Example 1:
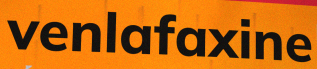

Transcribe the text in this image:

venlafaxine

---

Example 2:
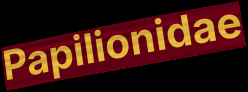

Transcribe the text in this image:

Papilionidae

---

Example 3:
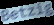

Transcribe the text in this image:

Betzig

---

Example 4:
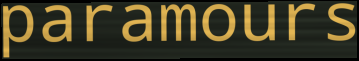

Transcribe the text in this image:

paramours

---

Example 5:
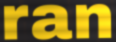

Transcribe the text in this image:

ran